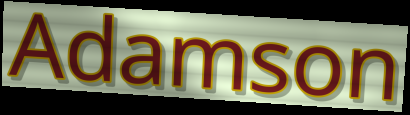
Adamson